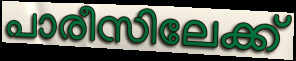
പാരീസിലേക്ക്